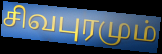
சிவபுரமும்